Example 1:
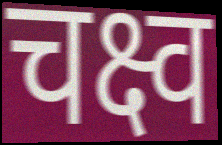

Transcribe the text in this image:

चक्ष्व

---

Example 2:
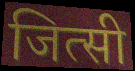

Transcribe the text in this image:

जित्सी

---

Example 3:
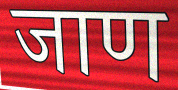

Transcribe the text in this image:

जाण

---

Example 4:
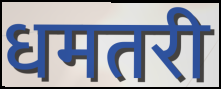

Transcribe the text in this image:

धमतरी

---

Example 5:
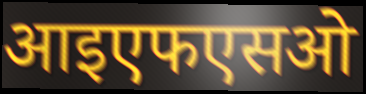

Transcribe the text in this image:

आइएफएसओ